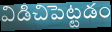
విడిచిపెట్టడం